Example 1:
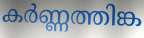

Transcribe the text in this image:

കർണ്ണത്തിങ്ക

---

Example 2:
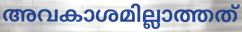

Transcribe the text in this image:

അവകാശമില്ലാത്തത്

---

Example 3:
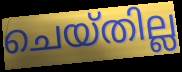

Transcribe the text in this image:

ചെയ്തില്ല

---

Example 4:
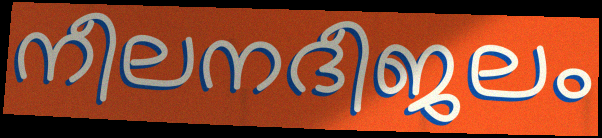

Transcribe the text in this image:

നീലനദീജലം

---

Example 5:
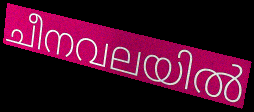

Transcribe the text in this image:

ചീനവലയിൽ